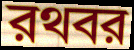
রথবর